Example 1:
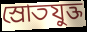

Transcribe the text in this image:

স্রোতযুক্ত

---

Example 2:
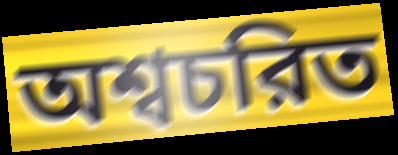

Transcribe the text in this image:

অশ্বচরিত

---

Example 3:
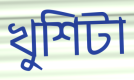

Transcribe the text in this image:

খুশিটা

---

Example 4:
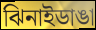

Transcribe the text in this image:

ঝিনাইডাঙা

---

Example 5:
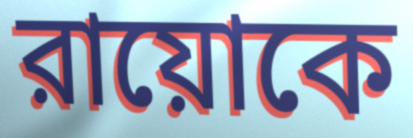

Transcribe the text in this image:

রায়োকে